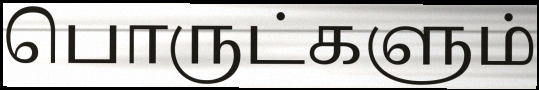
பொருட்களும்